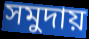
সমুদায়